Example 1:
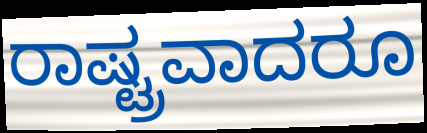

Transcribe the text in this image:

ರಾಷ್ಟ್ರವಾದರೂ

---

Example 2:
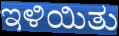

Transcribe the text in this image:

ಇಳಿಯಿತು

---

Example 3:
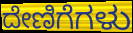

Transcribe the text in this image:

ದೇಣಿಗೆಗಳು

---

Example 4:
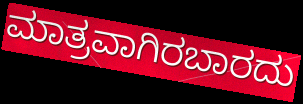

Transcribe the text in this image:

ಮಾತ್ರವಾಗಿರಬಾರದು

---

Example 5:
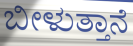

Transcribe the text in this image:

ಬೀಳುತ್ತಾನೆ